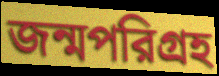
জন্মপরিগ্রহ